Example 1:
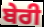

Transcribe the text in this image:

ਬੇਰੀ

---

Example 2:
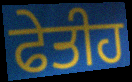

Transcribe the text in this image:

ਫੇਤੀਹ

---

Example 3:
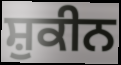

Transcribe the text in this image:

ਸ਼ੁਕੀਨ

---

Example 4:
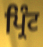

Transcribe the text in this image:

ਪ੍ਰਿੰਟ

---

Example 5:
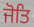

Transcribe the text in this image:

ਜੋਤਿ